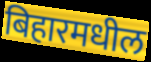
बिहारमधील